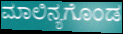
ಮಾಲಿನ್ಯಗೊಂಡ